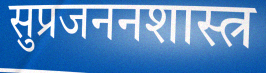
सुप्रजननशास्त्र